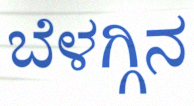
ಬೆಳಗ್ಗಿನ